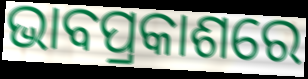
ଭାବପ୍ରକାଶରେ